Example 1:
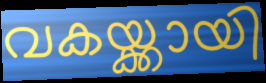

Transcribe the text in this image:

വകയ്ക്കായി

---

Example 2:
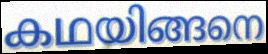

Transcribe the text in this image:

കഥയിങ്ങനെ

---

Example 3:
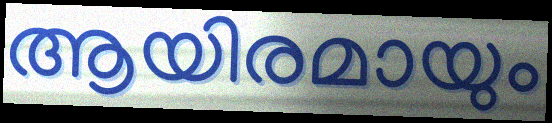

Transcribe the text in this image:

ആയിരമായും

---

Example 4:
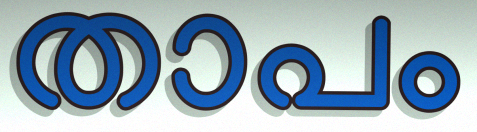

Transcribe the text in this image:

താപം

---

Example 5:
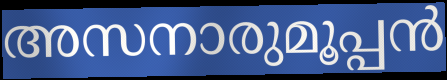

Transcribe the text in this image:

അസനാരുമൂപ്പൻ